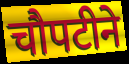
चौपटीने